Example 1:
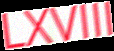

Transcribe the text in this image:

LXVIII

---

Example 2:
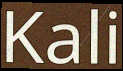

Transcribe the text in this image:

Kali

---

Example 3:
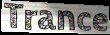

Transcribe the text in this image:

Trance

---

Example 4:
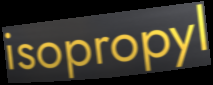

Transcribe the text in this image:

isopropyl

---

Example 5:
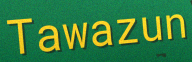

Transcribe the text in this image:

Tawazun